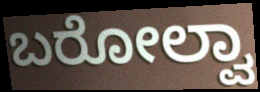
ಬರೋಲ್ವಾ